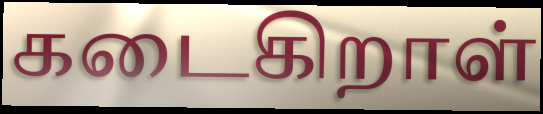
கடைகிறாள்